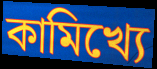
কামিখ্যে